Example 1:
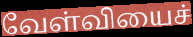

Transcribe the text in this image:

வேள்வியைச்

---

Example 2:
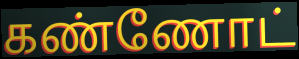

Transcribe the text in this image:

கண்ணோட்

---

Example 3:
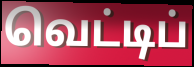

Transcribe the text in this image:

வெட்டிப்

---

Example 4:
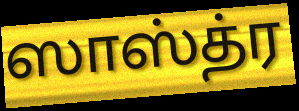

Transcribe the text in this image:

ஸாஸ்த்ர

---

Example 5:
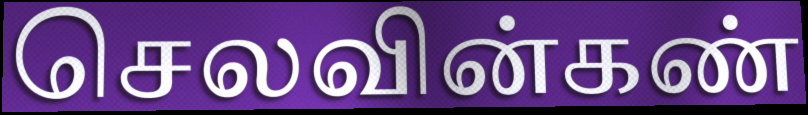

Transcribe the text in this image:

செலவின்கண்